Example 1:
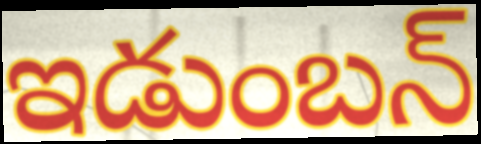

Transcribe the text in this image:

ఇడుంబన్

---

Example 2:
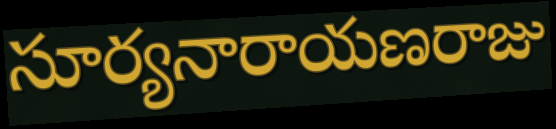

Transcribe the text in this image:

సూర్యనారాయణరాజు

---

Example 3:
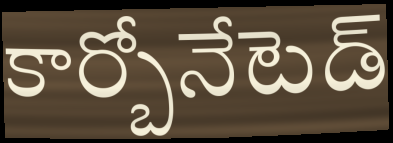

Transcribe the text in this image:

కార్బోనేటెడ్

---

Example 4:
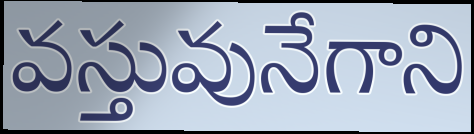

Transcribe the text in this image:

వస్తువునేగాని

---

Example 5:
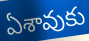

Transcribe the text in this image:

ఏశావుకు